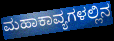
ಮಹಾಕಾವ್ಯಗಳಲ್ಲಿನ